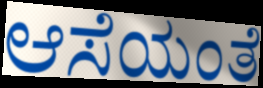
ಆಸೆಯಂತೆ